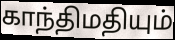
காந்திமதியும்